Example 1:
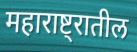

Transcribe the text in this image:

महाराष्ट्रातील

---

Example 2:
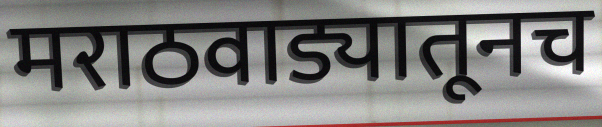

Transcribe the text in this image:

मराठवाड्यातूनच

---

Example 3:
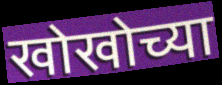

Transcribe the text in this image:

खोखोच्या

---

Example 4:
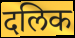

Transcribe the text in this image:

दलिक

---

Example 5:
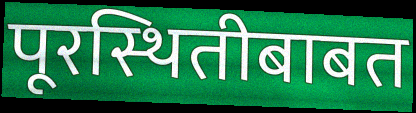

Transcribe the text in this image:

पूरस्थितीबाबत